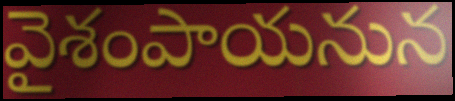
వైశంపాయనున